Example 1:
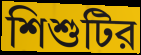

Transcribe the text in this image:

শিশুটির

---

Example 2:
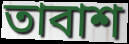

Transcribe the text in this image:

তাবাশ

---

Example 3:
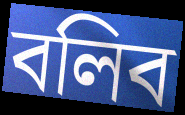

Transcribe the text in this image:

বলিব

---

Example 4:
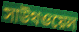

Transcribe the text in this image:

সাউথওয়েল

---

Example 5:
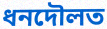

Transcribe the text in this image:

ধনদৌলত